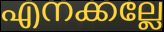
എനക്കല്ലേ